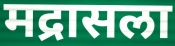
मद्रासला